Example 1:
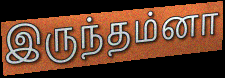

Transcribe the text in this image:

இருந்தம்னா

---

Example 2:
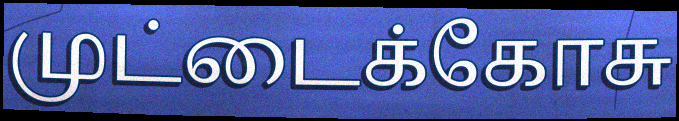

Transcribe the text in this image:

முட்டைக்கோசு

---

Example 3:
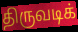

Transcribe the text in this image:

திருவடிக்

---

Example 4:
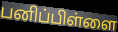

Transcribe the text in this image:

பனிப்பிள்ளை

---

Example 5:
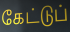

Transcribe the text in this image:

கேட்டுப்